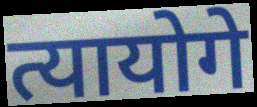
त्यायोगे